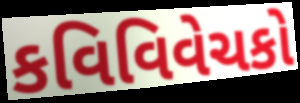
કવિવિવેચકો